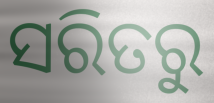
ସରିତରୁ